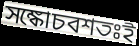
সঙ্কোচবশতঃই